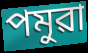
পমুৱা